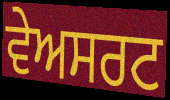
ਵੇਅਸਰਟ